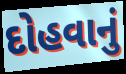
દોહવાનું